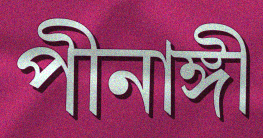
পীনাঙ্গী